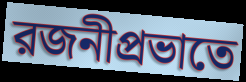
রজনীপ্রভাতে